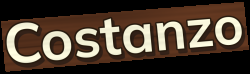
Costanzo